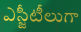
ఎస్జీటీలుగా